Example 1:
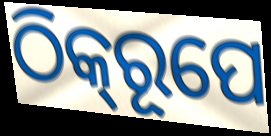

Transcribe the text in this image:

ଠିକ୍‌ରୂପେ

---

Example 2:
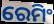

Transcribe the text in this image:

ରେମିଂ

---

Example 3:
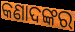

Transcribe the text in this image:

କଣାଦଙ୍କର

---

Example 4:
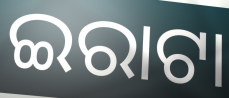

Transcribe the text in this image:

ଇରାଟା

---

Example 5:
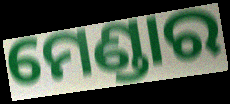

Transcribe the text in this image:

ମେଣ୍ଡାର